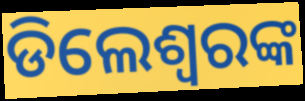
ଡିଲେଶ୍ଵରଙ୍କ